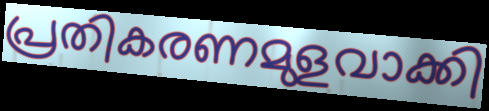
പ്രതികരണമുളവാക്കി